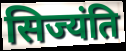
सिज्यंति